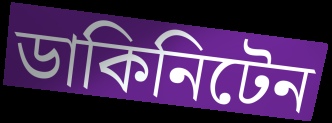
ডাকিনিটেন